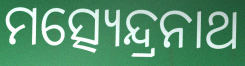
ମତ୍ସ୍ୟେନ୍ଦ୍ରନାଥ